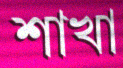
শাখা